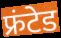
फ्रंटेड